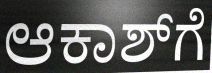
ಆಕಾಶ್‌ಗೆ